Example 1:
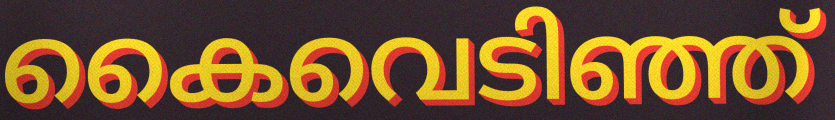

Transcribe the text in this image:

കൈവെടിഞ്ഞ്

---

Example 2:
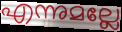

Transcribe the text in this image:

എന്നുമല്ലേ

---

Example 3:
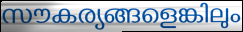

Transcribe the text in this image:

സൗകര്യങ്ങളെങ്കിലും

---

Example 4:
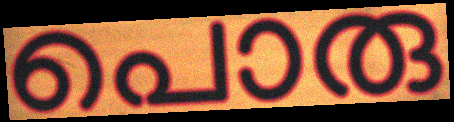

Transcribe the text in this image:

പൊരു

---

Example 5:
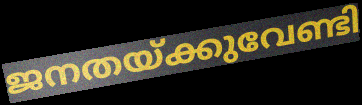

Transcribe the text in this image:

ജനതയ്ക്കുവേണ്ടി